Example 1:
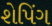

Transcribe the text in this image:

શેપિંગ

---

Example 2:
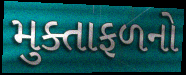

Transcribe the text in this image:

મુક્તાફળનો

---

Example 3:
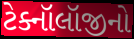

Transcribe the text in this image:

ટેક્નૉલૉજીનો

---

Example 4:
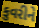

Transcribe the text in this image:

કુવરીને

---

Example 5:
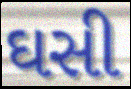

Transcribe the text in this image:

ઘસી